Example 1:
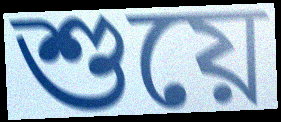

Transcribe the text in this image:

শুয়ে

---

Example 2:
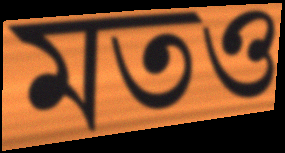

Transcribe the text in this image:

মতও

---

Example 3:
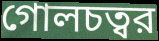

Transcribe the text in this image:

গোলচত্বর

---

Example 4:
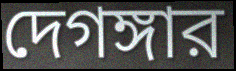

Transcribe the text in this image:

দেগঙ্গার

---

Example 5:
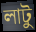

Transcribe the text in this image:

লাটু